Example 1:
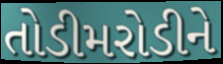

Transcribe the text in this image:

તોડીમરોડીને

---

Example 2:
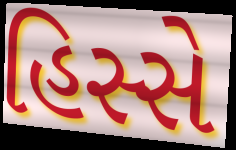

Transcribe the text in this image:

હિસ્સે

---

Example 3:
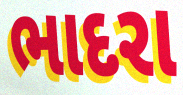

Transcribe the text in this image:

ભાદરા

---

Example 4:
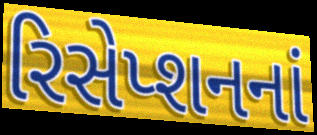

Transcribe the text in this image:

રિસેપ્શનનાં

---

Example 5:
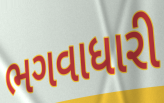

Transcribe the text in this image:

ભગવાધારી